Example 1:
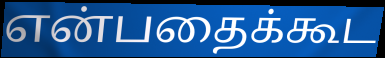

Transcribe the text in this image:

என்பதைக்கூட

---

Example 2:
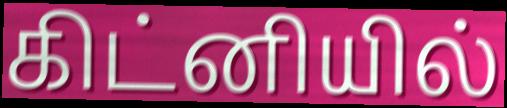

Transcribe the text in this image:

கிட்னியில்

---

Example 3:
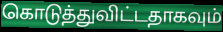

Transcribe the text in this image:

கொடுத்துவிட்டதாகவும்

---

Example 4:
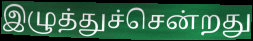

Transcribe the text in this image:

இழுத்துச்சென்றது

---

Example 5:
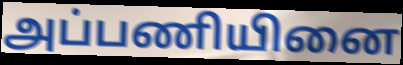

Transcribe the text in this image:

அப்பணியினை